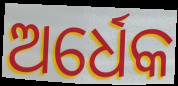
ଅର୍ଧେକ